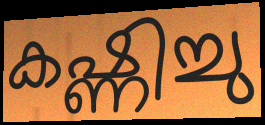
കഷ്ണിച്ചു